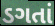
ડગતાં